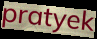
pratyek